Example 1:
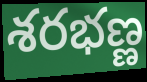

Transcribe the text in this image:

శరభణ్ణ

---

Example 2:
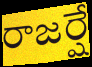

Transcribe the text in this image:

రాజర్షే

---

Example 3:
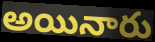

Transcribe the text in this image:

అయినారు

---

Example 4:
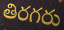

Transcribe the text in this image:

తిరగరు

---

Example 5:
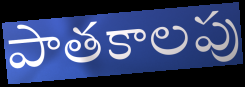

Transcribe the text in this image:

పాతకాలపు